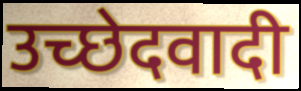
उच्छेदवादी